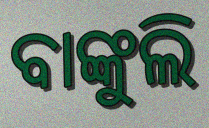
ବାଙ୍କୁଲି